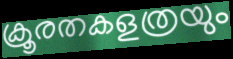
ക്രൂരതകളത്രയും